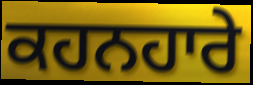
ਕਹਨਹਾਰੇ